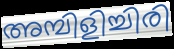
അമ്പിളിച്ചിരി